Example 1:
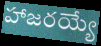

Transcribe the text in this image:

హాజరయ్యే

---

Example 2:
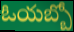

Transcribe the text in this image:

ఓయబ్బో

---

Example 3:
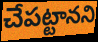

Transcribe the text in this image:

చేపట్టానని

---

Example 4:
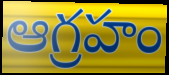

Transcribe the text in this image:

ఆగ్రహం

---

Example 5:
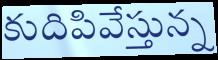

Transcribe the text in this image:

కుదిపివేస్తున్న